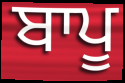
ਬਾਪੂ